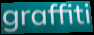
graffiti